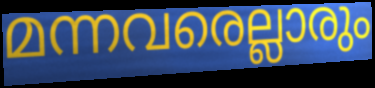
മന്നവരെല്ലാരും